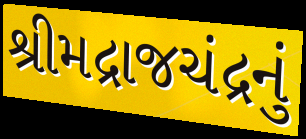
શ્રીમદ્રાજચંદ્રનું